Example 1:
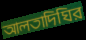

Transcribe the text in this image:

আলতাদিঘির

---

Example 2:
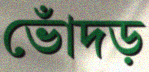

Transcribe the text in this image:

ভোঁদড়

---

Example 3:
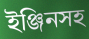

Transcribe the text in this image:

ইঞ্জিনসহ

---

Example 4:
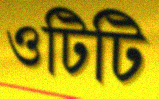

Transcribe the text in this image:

ওটিটি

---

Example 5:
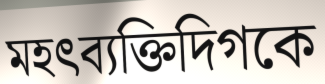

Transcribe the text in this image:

মহৎব্যক্তিদিগকে